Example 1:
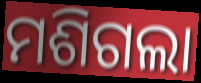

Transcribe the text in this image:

ମଶିଗଲା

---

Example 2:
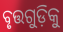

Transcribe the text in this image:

ବୃତ୍ତଗୁଡ଼ିକୁ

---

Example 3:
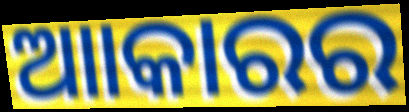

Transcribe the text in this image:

ଆାକାରର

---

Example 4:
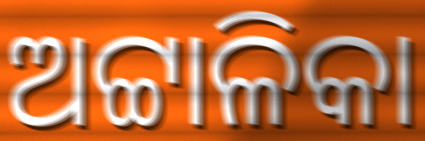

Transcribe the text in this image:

ଅଟ୍ଟାଳିକା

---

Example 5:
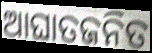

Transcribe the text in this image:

ଆଘାତଜନିତ